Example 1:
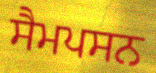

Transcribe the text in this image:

ਸੈਮਪਸਨ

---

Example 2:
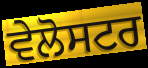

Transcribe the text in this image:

ਵੇਲੋਸਟਰ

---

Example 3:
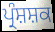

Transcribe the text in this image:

ਪ੍ਰੰਸ਼ਸ਼ਕ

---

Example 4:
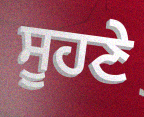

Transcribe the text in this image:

ਸੂਹਣੇ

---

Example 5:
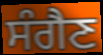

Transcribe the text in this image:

ਸੰਗੈਣ